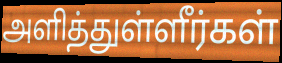
அளித்துள்ளீர்கள்